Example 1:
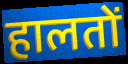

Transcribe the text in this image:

हालतों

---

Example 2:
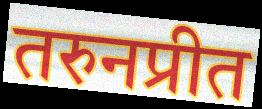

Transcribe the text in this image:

तरुनप्रीत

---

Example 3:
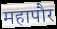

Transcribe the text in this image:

महापौर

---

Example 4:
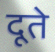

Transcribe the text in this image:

दूते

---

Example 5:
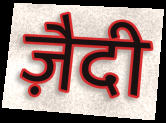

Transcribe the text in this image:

ज़ैदी